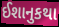
ઈશાનુકથા